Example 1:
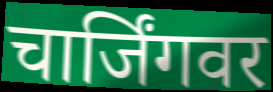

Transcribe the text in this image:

चार्जिंगवर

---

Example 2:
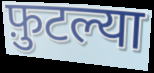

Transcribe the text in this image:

फ़ुटल्या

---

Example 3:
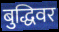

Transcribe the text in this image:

बुद्धिवर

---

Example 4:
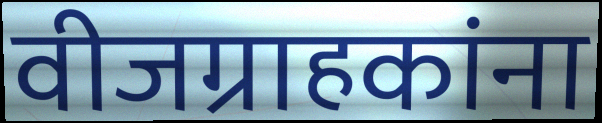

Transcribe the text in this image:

वीजग्राहकांना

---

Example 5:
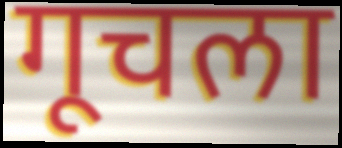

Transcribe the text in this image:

गूचला